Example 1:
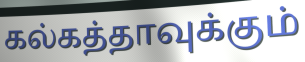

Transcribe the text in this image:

கல்கத்தாவுக்கும்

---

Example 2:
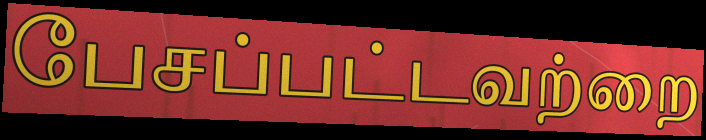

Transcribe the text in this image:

பேசப்பட்டவற்றை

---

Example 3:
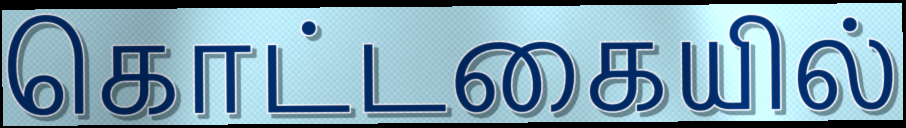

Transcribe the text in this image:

கொட்டகையில்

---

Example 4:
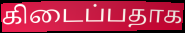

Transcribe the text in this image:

கிடைப்பதாக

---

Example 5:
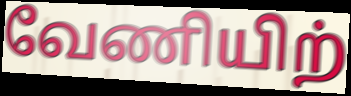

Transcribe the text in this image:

வேணியிற்